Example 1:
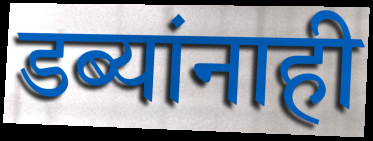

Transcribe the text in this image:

डब्यांनाही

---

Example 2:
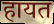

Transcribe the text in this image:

हायत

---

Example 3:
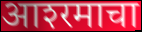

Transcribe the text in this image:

आश्रमाचा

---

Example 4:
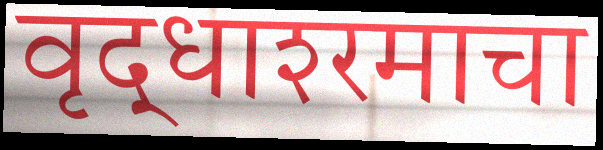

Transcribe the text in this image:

वृद्धाश्रमाचा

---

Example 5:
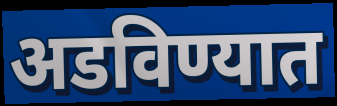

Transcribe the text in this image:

अडविण्यात